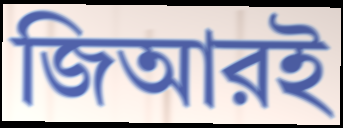
জিআরই